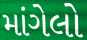
માંગેલો